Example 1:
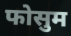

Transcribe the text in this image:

फोसुम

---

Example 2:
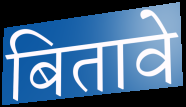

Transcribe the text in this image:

बितावे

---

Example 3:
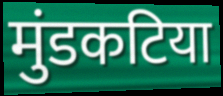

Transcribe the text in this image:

मुंडकटिया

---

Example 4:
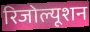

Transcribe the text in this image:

रिजोल्‍यूशन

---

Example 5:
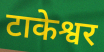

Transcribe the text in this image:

टाकेश्वर